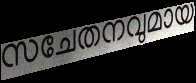
സചേതനവുമായ